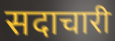
सदाचारी